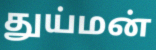
துய்மன்